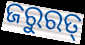
ଜରୁରତ୍